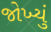
જોખ્યું